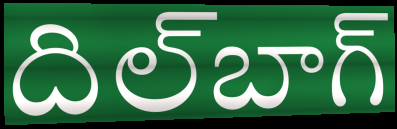
దిల్‌బాగ్